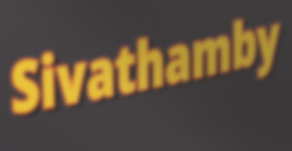
Sivathamby